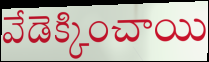
వేడెక్కించాయి